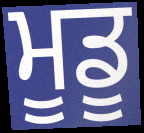
ਮੂਡੂ